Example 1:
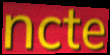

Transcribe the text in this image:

ncte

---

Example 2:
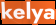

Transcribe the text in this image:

kelya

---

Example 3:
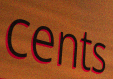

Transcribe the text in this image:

cents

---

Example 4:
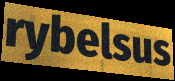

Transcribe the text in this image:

rybelsus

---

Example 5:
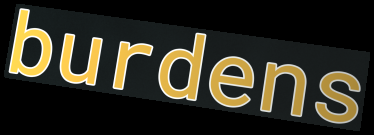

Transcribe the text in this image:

burdens